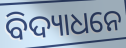
ବିଦ୍ୟାଧନେ